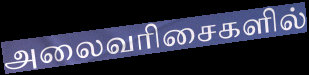
அலைவரிசைகளில்